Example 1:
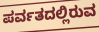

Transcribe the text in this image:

ಪರ್ವತದಲ್ಲಿರುವ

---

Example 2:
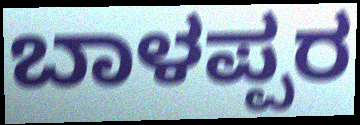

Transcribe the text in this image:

ಬಾಳಪ್ಪರ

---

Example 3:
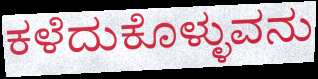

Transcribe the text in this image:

ಕಳೆದುಕೊಳ್ಳುವನು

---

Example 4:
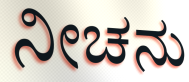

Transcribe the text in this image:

ನೀಚನು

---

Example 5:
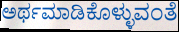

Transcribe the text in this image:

ಅರ್ಥಮಾಡಿಕೊಳ್ಳುವಂತೆ